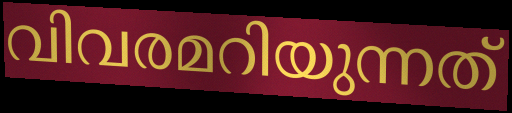
വിവരമറിയുന്നത്